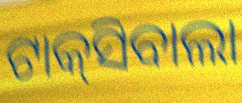
ଟାକ୍‌ସିବାଲା